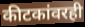
कीटकांवरही